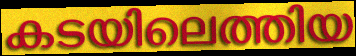
കടയിലെത്തിയ